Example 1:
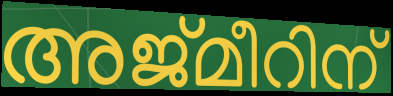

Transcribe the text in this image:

അജ്മീറിന്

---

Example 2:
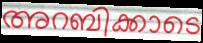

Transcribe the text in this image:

അറബിക്കാടെ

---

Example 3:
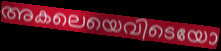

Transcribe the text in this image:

അകലെയെവിടെയോ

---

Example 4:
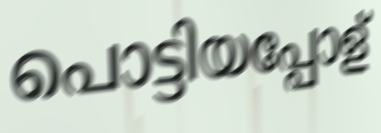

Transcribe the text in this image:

പൊട്ടിയപ്പോള്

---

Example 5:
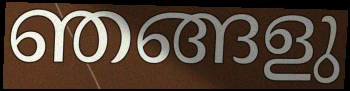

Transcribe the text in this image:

ഞങ്ങളു